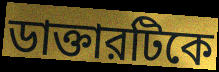
ডাক্তারটিকে